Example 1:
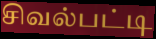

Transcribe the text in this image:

சிவல்பட்டி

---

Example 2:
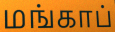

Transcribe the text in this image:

மங்காப்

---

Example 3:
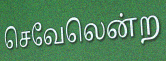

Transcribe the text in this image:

செவேலென்ற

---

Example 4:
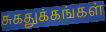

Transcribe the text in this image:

சுகதுக்கங்கள்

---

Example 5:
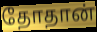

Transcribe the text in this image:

தோதான்